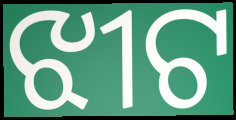
ଝୀଟ